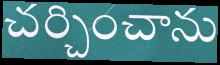
చర్చించాను